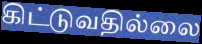
கிட்டுவதில்லை